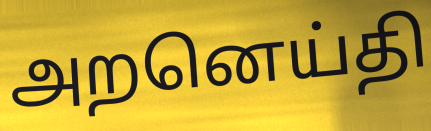
அறனெய்தி